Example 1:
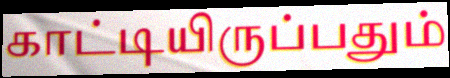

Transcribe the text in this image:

காட்டியிருப்பதும்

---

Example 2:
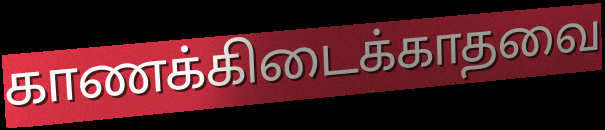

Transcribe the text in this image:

காணக்கிடைக்காதவை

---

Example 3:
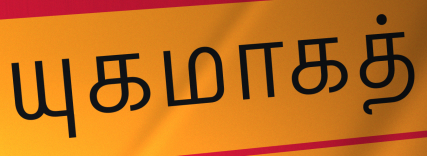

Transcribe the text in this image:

யுகமாகத்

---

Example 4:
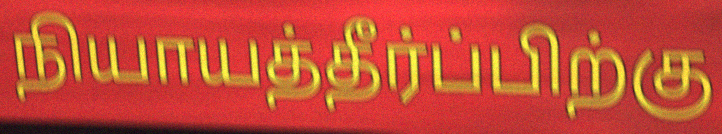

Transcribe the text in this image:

நியாயத்தீர்ப்பிற்கு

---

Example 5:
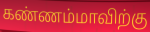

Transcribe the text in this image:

கண்ணம்மாவிற்கு